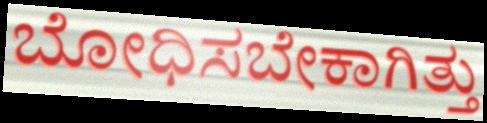
ಬೋಧಿಸಬೇಕಾಗಿತ್ತು